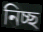
নিচ্ছ